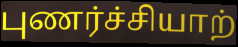
புணர்ச்சியாற்